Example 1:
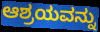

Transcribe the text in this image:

ಆಶ್ರಯವನ್ನು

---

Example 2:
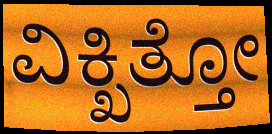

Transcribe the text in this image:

ವಿಕ್ಖಿತ್ತೋ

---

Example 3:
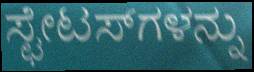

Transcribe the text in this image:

ಸ್ಟೇಟಸ್‌ಗಳನ್ನು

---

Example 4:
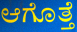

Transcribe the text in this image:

ಆಗೊತ್ತೆ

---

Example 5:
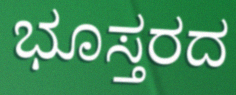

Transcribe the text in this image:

ಭೂಸ್ತರದ